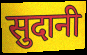
सुदानी